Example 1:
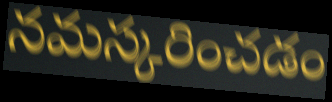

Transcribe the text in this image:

నమస్కరించడం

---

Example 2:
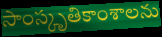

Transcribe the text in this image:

సాంస్కృతికాంశాలను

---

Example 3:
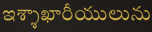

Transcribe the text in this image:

ఇశ్శాఖారీయులును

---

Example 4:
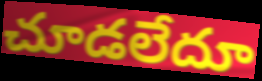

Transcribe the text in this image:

చూడలేదూ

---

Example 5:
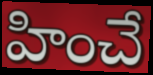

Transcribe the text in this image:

హించే